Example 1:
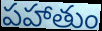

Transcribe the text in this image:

పహాతుం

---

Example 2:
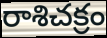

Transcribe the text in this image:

రాశిచక్రం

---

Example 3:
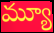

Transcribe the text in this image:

మ్యూ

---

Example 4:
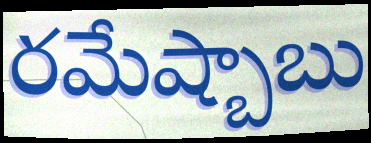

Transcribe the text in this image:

రమేష్బాబు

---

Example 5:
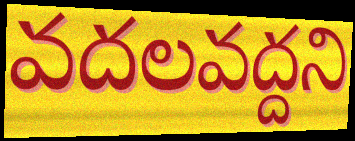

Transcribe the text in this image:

వదలవద్దని